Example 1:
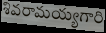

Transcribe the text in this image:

శివరామయ్యగారి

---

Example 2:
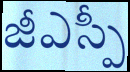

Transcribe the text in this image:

జీఎస్పీ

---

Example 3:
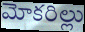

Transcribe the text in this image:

మోకరిల్లు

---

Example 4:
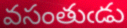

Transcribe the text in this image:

వసంతుఁడు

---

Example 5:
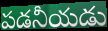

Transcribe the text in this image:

పడనీయడు